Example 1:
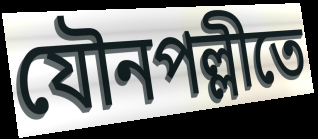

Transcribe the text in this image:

যৌনপল্লীতে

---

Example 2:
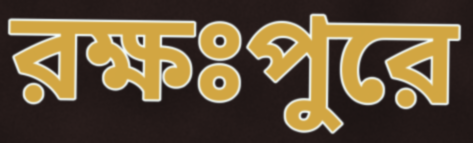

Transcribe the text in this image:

রক্ষঃপুরে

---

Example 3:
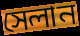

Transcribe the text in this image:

সেলান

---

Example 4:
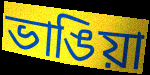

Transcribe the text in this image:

ভাঙিয়া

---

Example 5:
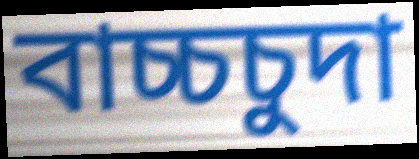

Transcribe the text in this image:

বাচ্চচুদা